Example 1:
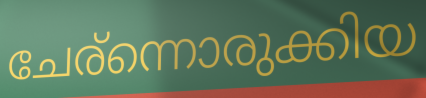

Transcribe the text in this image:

ചേര്ന്നൊരുക്കിയ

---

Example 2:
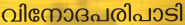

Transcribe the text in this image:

വിനോദപരിപാടി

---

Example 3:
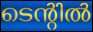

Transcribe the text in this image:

ടെന്റിൽ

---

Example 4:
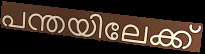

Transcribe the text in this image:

പന്തയിലേക്ക്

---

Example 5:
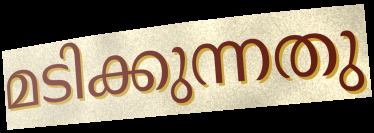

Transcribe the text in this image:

മടിക്കുന്നതു